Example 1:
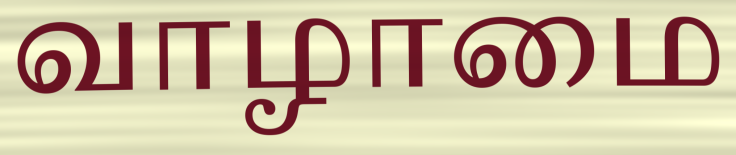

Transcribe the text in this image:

வாழாமை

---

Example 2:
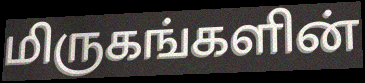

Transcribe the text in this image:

மிருகங்களின்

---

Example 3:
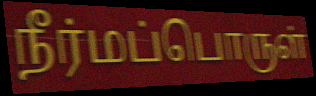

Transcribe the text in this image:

நீர்மப்பொருள்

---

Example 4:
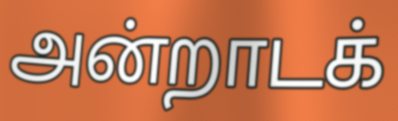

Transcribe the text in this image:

அன்றாடக்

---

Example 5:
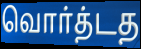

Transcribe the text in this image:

வொர்த்டத